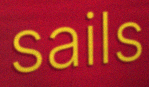
sails